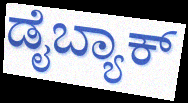
ಡೈಬ್ಯಾಕ್